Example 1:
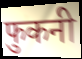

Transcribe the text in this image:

फुकनी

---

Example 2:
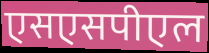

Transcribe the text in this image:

एसएसपीएल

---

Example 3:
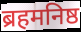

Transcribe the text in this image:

ब्रहमनिष्ठ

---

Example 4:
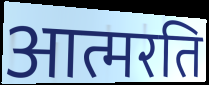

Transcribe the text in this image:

आत्मरति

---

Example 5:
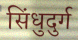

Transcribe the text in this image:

सिंधुदुर्ग